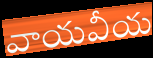
వాయవీయ